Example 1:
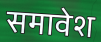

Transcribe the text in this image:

समावेश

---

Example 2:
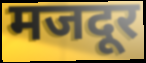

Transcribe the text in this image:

मजदूर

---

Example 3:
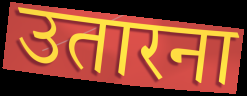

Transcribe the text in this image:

उतारना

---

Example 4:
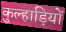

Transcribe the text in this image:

कुल्हाड़ियों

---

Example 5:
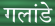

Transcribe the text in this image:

गलांडे